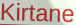
Kirtane